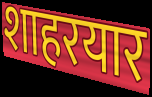
शाहरयार